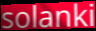
solanki